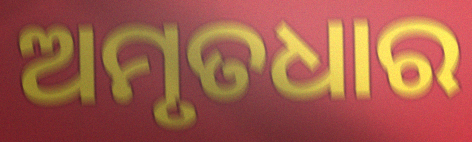
ଅମୃତଧାର